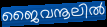
ജൈവനൂലിൽ